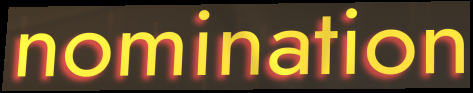
nomination